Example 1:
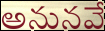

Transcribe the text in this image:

అనునవే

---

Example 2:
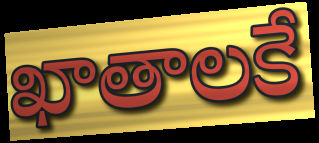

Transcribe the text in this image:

ఖాతాలకే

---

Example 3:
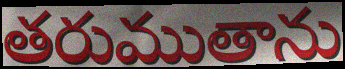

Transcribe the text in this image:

తరుముతాను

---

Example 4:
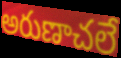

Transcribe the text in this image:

అరుణాచలే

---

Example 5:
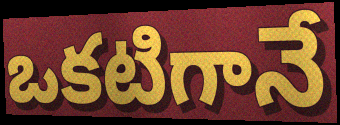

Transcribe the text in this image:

ఒకటిగానే